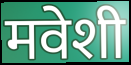
मवेशी